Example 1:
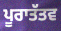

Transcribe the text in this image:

ਪੂਰਾਤੱਤਵ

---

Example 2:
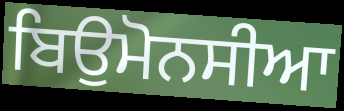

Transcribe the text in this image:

ਬਿਉਮੋਨਸੀਆ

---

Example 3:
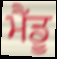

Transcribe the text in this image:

ਮੈਂਡੂ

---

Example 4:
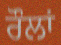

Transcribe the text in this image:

ਰੌਲਾਂ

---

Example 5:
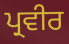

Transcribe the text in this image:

ਪ੍ਰਵੀਰ